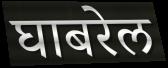
घाबरेल